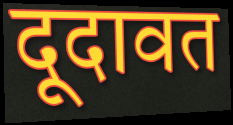
दूदावत